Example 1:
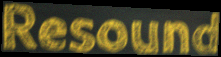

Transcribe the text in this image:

Resound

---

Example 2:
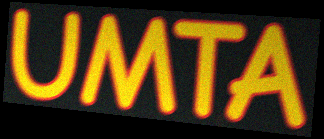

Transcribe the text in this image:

UMTA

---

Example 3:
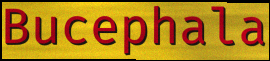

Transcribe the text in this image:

Bucephala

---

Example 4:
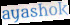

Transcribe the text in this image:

ayashok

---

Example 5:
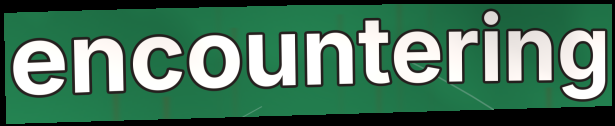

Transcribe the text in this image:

encountering